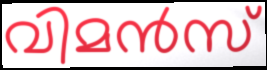
വിമൻസ്